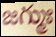
జగ్ముః